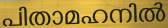
പിതാമഹനിൽ